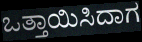
ಒತ್ತಾಯಿಸಿದಾಗ